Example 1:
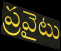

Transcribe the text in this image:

ప్రవైటు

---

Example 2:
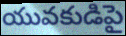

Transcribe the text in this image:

యువకుడిపై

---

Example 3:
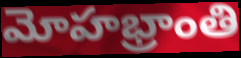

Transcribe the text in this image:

మోహభ్రాంతి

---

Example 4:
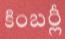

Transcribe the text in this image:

కింబర్లీ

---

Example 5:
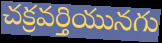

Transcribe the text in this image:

చక్రవర్తియునగు